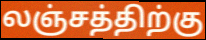
லஞ்சத்திற்கு